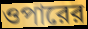
ওপারের